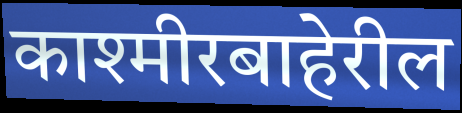
काश्मीरबाहेरील